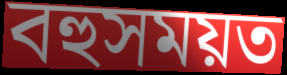
বহুসময়ত